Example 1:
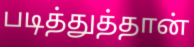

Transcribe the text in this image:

படித்துத்தான்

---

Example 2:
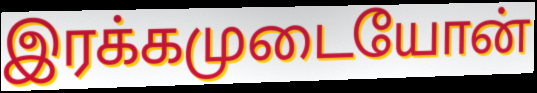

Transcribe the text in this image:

இரக்கமுடையோன்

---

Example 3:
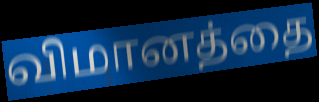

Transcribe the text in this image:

விமானத்தை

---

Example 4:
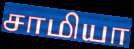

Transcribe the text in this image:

சாமியா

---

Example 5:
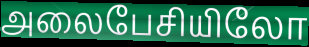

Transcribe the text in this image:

அலைபேசியிலோ